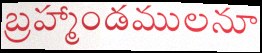
బ్రహ్మాండములనూ